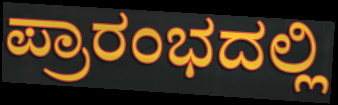
ಪ್ರಾರಂಭದಲ್ಲಿ